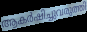
ആകർഷിച്ചുവരുത്തി